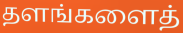
தளங்களைத்